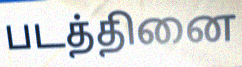
படத்தினை